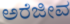
ಅರೆಜೀವ